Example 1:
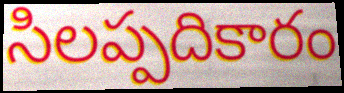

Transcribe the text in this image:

సిలప్పదికారం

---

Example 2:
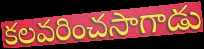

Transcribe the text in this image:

కలవరించసాగాడు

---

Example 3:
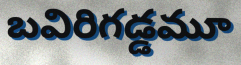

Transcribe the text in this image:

బవిరిగడ్డమూ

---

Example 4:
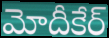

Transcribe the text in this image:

మోదీకేర్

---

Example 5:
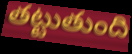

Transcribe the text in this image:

తట్టుతుంది